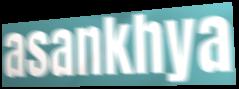
asankhya